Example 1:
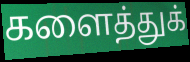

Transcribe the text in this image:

களைத்துக்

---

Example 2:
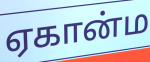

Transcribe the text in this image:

ஏகான்ம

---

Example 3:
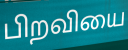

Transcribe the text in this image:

பிறவியை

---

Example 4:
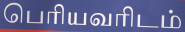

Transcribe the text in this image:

பெரியவரிடம்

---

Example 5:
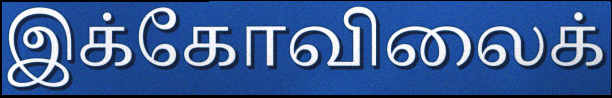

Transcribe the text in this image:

இக்கோவிலைக்